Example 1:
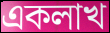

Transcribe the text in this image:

একলাখ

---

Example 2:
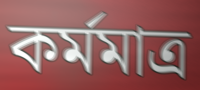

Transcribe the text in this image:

কর্মমাত্র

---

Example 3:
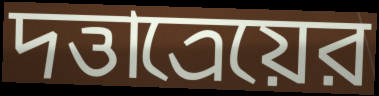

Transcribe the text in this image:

দত্তাত্রেয়ের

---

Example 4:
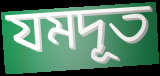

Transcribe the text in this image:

যমদূত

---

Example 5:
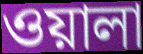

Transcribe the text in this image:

ওয়ালা